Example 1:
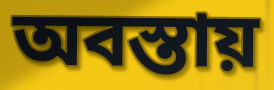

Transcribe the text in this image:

অবস্তায়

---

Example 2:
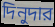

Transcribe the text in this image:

দিনুদার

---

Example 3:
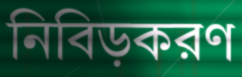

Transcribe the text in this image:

নিবিড়করণ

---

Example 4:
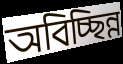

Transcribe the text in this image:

অবিচ্ছিন্ন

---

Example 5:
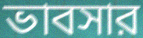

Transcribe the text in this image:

ভাবসার